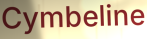
Cymbeline